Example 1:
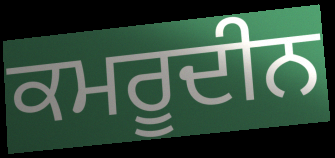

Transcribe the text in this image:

ਕਮਰੂਦੀਨ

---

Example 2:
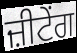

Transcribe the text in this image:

ਜ਼ੀਟੇਂਗ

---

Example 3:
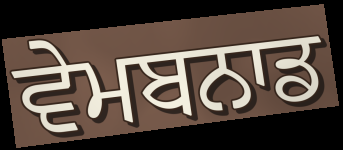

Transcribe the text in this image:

ਵੇਮਬਨਾਡ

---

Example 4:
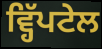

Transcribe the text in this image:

ਵ੍ਹਿੱਪਟੇਲ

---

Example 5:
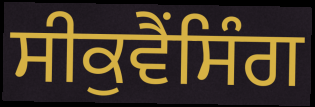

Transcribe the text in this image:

ਸੀਕੁਵੈਂਸਿੰਗ